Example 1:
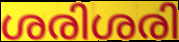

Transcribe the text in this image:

ശരിശരി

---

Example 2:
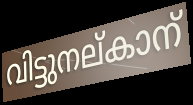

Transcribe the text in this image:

വിട്ടുനല്കാന്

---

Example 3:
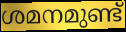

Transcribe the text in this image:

ശമനമുണ്ട്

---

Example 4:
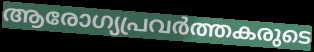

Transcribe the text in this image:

ആരോഗ്യപ്രവർത്തകരുടെ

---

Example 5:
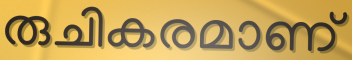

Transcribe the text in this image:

രുചികരമാണ്